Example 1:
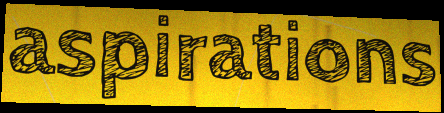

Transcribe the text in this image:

aspirations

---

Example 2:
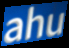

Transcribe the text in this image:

ahu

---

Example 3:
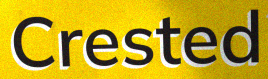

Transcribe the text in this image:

Crested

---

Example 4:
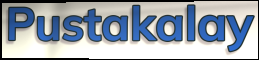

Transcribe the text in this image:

Pustakalay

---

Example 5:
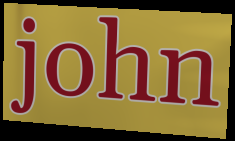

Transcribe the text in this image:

john